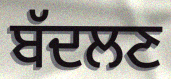
ਬੱਦਲਣ